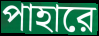
পাহারে